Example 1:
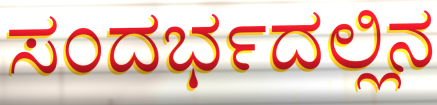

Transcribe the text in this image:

ಸಂದರ್ಭದಲ್ಲಿನ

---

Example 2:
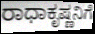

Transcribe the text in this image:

ರಾಧಾಕೃಷ್ಣನಿಗೆ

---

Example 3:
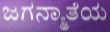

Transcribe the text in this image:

ಜಗನ್ಮಾತೆಯ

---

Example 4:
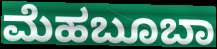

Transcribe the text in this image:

ಮೆಹಬೂಬಾ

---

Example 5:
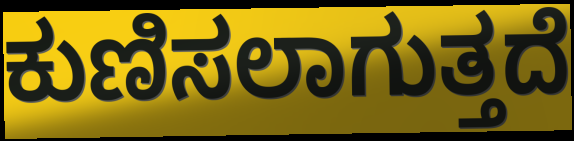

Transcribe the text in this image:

ಕುಣಿಸಲಾಗುತ್ತದೆ